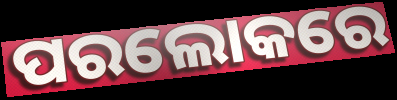
ପରଲୋକରେ